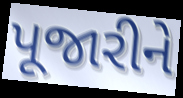
પૂજારીને